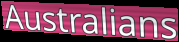
Australians